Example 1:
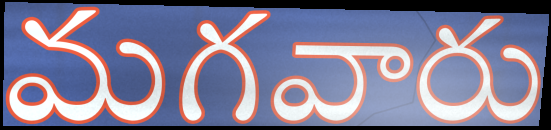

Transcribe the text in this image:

మగవారు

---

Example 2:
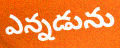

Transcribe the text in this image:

ఎన్నడును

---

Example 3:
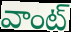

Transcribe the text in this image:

వాంట్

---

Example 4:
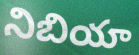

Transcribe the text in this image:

నిబియా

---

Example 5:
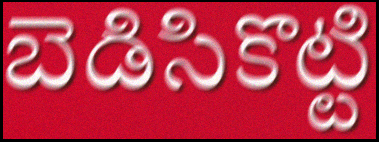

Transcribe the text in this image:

బెడిసికొట్టి